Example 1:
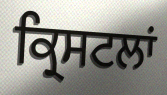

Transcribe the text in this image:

ਕ੍ਰਿਸਟਲਾਂ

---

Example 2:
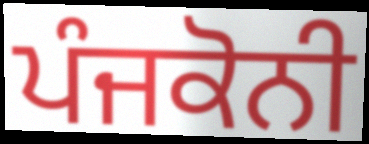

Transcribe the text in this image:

ਪੰਜਕੋਨੀ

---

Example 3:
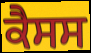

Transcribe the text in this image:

ਕੈਸਸ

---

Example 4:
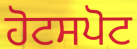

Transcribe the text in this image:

ਹੋਟਸਪੋਟ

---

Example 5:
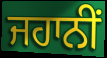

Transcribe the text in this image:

ਜਹਾਨੀਂ